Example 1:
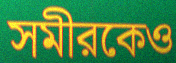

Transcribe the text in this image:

সমীরকেও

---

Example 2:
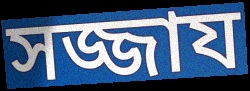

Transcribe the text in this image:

সজ্জায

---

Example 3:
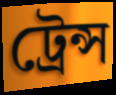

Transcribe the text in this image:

ট্রেন্স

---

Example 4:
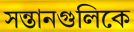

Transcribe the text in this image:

সন্তানগুলিকে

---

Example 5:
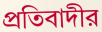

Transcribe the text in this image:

প্রতিবাদীর